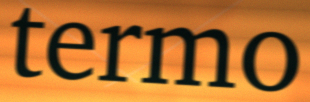
termo